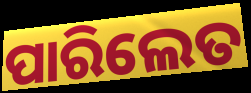
ପାରିଲେତ